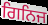
ਗਿਨਿਜ